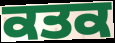
ਕਤਕ